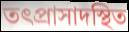
তৎপ্রাসাদস্থিত